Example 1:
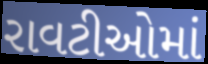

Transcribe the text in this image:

રાવટીઓમાં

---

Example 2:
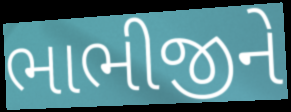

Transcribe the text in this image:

ભાભીજીને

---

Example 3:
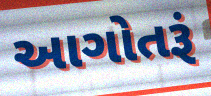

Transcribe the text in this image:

આગોતરૂં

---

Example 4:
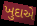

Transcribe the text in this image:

ખુદાએ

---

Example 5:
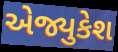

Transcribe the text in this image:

એજ્યુકેશ